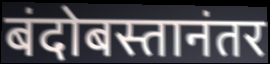
बंदोबस्तानंतर